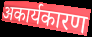
अकार्यकारण